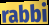
rabbi